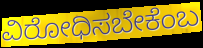
ವಿರೋಧಿಸಬೇಕೆಂಬ